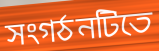
সংগঠনটিতে